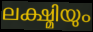
ലക്ഷ്മിയും